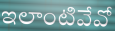
ఇలాంటివేవో